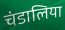
चंडालिया